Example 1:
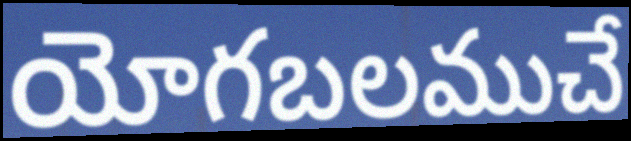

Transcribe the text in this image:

యోగబలముచే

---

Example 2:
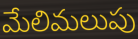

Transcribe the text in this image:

మేలిమలుపు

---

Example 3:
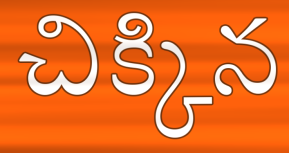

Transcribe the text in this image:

చిక్కిన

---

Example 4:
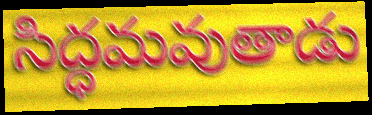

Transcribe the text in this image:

సిద్ధమవుతాడు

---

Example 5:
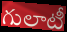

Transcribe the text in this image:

గులాటీ